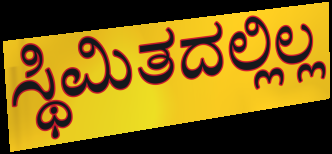
ಸ್ಥಿಮಿತದಲ್ಲಿಲ್ಲ